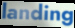
landing